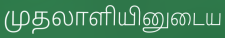
முதலாளியினுடைய